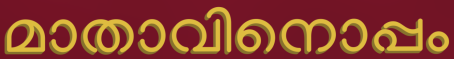
മാതാവിനൊപ്പം